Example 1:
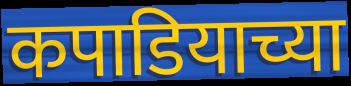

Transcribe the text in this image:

कपाडियाच्या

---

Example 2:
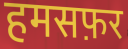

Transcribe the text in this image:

हमसफ़र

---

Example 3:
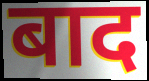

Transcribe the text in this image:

बाद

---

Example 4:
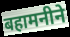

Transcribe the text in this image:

बहामनीने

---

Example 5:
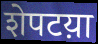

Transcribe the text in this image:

शेपटय़ा